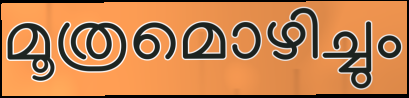
മൂത്രമൊഴിച്ചും